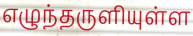
எழுந்தருளியுள்ள